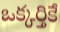
ఒక్కర్తికే